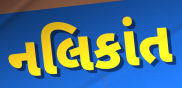
નલિકાંત